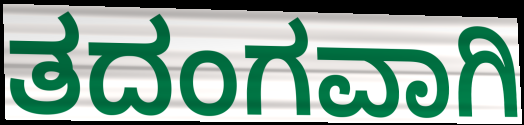
ತದಂಗವಾಗಿ